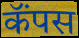
कॅंपस